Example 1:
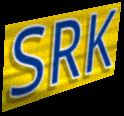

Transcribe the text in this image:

SRK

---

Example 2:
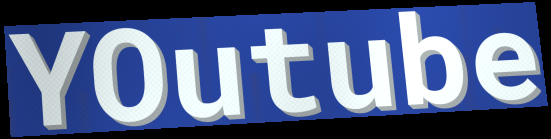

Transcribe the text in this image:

YOutube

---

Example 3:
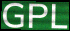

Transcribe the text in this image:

GPL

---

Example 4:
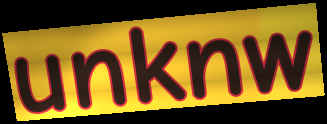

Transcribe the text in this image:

unknw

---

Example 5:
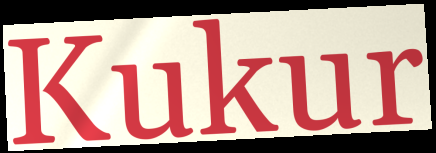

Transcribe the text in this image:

Kukur